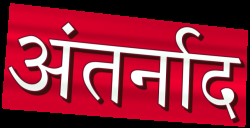
अंतर्नाद